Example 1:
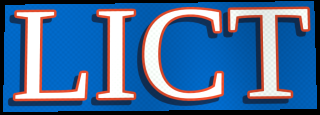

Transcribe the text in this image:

LICT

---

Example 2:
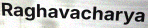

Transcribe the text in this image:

Raghavacharya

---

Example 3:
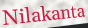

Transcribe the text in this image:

Nilakanta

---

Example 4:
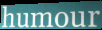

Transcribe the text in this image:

humour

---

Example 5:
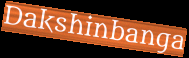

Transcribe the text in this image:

Dakshinbanga